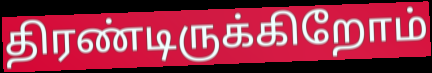
திரண்டிருக்கிறோம்